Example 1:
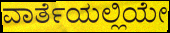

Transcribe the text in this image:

ವಾರ್ತೆಯಲ್ಲಿಯೇ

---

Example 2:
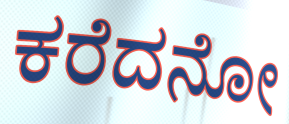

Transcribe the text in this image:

ಕರೆದನೋ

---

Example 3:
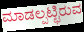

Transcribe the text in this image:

ಮಾಡಲ್ಪಟ್ಟಿರುವ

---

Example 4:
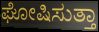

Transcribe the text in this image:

ಘೋಷಿಸುತ್ತಾ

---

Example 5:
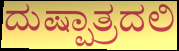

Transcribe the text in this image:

ದುಷ್ಪಾತ್ರದಲಿ